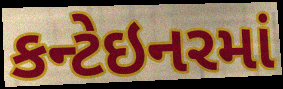
કન્ટેઇનરમાં